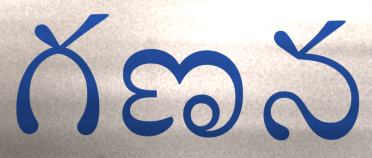
గణన